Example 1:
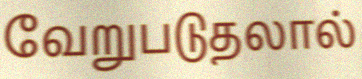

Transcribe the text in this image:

வேறுபடுதலால்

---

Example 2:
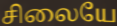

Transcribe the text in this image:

சிலையே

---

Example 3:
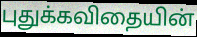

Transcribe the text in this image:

புதுக்கவிதையின்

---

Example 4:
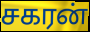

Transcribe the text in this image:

சகரன்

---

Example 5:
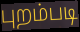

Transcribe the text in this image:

புறம்படி